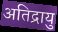
अतिद्रायु